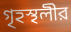
গৃহস্থলীর